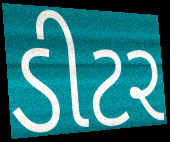
ડીટર